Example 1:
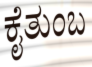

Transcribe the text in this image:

ಕೈತುಂಬ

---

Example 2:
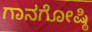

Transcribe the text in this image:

ಗಾನಗೋಷ್ಠಿ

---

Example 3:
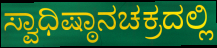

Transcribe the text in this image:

ಸ್ವಾಧಿಷ್ಠಾನಚಕ್ರದಲ್ಲಿ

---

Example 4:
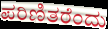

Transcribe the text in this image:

ಪರಿಣಿತರೆಂದು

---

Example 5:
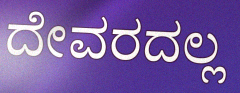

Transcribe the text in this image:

ದೇವರದಲ್ಲ